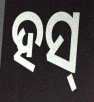
ହସ୍